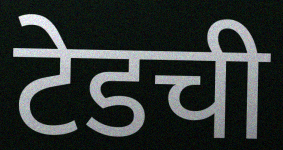
टेडची